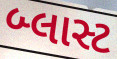
બ્લાસ્ટ